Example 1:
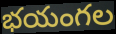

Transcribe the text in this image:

భయంగల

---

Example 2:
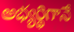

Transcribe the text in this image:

అభ్యర్థిగానే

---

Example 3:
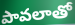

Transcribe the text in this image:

పావలాతో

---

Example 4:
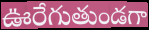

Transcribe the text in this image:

ఊరేగుతుండగా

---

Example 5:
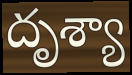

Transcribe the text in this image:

దృశ్యా